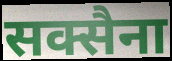
सक्सैना